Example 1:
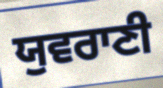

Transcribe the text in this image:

ਯੁਵਰਾਣੀ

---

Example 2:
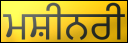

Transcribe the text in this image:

ਮਸ਼ੀਨਰੀ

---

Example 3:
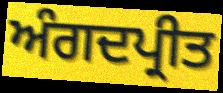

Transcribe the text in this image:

ਅੰਗਦਪ੍ਰੀਤ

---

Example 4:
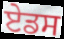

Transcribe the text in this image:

ਏਡਸ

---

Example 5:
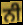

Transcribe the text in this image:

ਨੀ